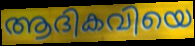
ആദികവിയെ